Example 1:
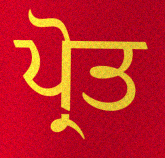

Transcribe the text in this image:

ਪ੍ਰੋਤ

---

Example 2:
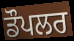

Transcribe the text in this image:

ਡੌਪਲਰ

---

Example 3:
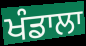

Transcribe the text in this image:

ਖੰਡਾਲਾ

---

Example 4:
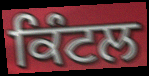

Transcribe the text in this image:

ਕਿੰਟਲ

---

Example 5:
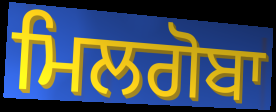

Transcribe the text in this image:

ਮਿਲਗੋਬਾ